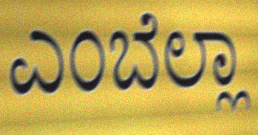
ಎಂಬೆಲ್ಲಾ